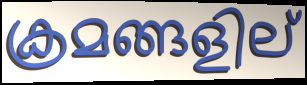
ക്രമങ്ങളില്